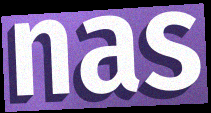
nas